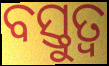
ବସ୍ତୁତ୍ବ